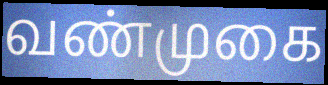
வண்முகை